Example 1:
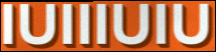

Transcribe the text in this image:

IUIIIUIU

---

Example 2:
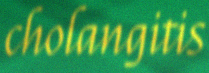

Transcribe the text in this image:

cholangitis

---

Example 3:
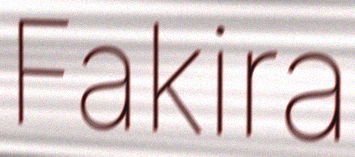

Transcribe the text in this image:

Fakira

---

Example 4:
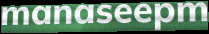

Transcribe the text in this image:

manaseepm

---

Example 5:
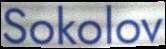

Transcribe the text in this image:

Sokolov